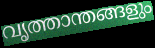
വൃത്താന്തങ്ങളും